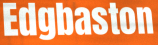
Edgbaston